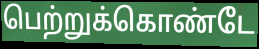
பெற்றுக்கொண்டே